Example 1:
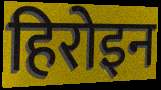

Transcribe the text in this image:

हिरोइन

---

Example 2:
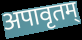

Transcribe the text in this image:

अपावृतम्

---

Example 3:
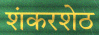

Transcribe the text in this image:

शंकरशेठ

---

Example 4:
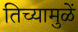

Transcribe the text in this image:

तिच्यामुळें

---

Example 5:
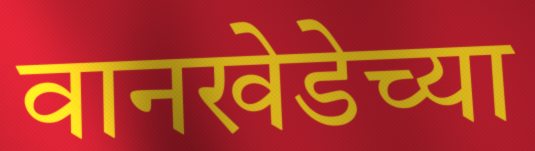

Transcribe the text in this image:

वानखेडेच्या